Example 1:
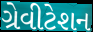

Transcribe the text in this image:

ગ્રેવીટેશન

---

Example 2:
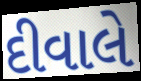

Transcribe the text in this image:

દીવાલે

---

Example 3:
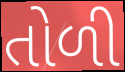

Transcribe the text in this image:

તોળી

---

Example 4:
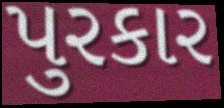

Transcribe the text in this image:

પુરકાર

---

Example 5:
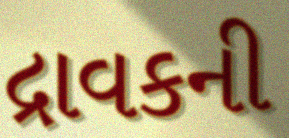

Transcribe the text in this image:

દ્રાવકની